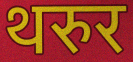
थरुर